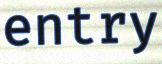
entry